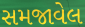
સમજાવેલ